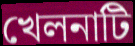
খেলনাটি